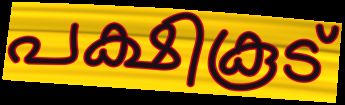
പക്ഷികൂട്